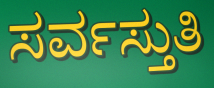
ಸರ್ವಸ್ತುತಿ